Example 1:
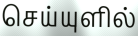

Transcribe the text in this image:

செய்யுளில்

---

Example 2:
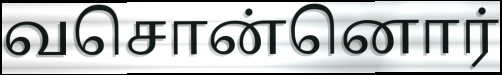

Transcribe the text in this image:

வசொன்னொர்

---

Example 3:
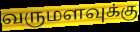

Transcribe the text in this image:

வருமளவுக்கு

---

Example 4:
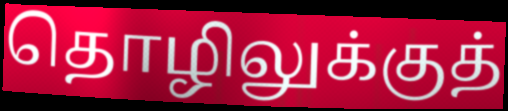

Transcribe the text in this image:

தொழிலுக்குத்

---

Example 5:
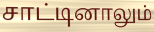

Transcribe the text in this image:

சாட்டினாலும்